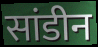
सांडीन